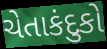
ચેતાકંદુકો